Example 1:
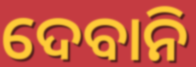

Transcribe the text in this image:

ଦେବାନି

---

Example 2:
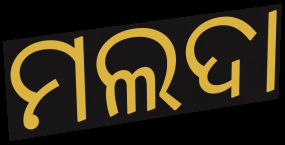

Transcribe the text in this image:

ମଲଦା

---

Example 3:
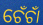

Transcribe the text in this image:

ଚେଁଚାଁ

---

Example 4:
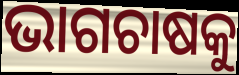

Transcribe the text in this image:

ଭାଗଚାଷକୁ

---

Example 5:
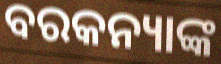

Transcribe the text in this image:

ବରକନ୍ୟାଙ୍କ